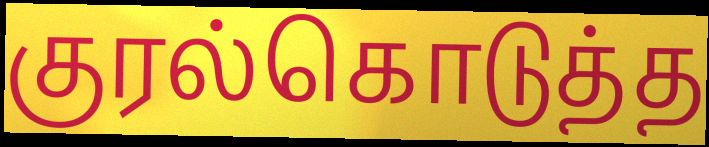
குரல்கொடுத்த